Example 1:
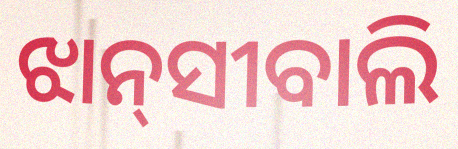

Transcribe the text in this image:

ଝାନ୍‌ସୀବାଲି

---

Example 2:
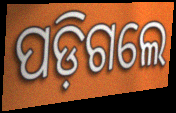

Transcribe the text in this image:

ପଡ଼ିଗଲେ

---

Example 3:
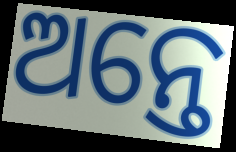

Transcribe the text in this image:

ଅନ୍ତେ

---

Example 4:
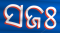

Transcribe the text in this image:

ସଜଃ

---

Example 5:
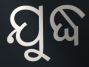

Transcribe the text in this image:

ଯୁଦ୍ଧ